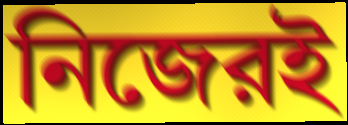
নিজেরই